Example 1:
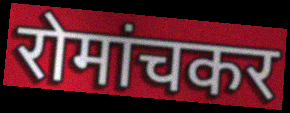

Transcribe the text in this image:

रोमांचकर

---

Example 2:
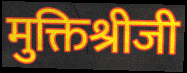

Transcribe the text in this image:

मुक्तिश्रीजी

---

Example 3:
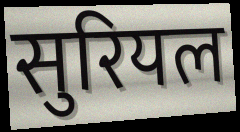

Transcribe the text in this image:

सुरियल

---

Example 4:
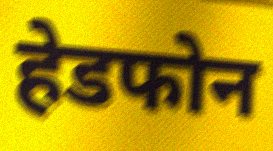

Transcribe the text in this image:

हेडफोन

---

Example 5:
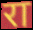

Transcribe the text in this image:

रा